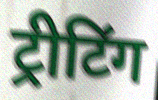
ट्रीटिंग